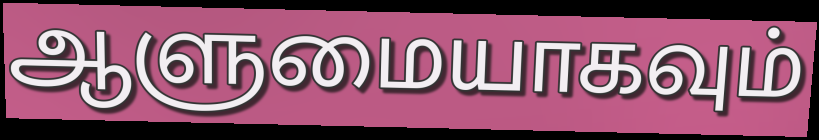
ஆளுமையாகவும்